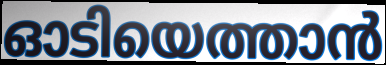
ഓടിയെത്താൻ